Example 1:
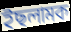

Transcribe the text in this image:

ইছলামক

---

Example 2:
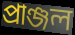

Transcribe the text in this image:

প্ৰাঞ্জল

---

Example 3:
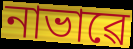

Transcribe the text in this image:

নাভাৱে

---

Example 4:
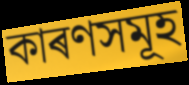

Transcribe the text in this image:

কাৰণসমূহ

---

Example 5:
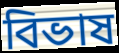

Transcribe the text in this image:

বিভাষ